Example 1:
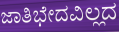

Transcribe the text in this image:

ಜಾತಿಭೇದವಿಲ್ಲದ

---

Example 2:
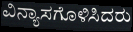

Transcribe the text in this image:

ವಿನ್ಯಾಸಗೊಳಿಸಿದರು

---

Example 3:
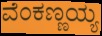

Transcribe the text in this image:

ವೆಂಕಣ್ಣಯ್ಯ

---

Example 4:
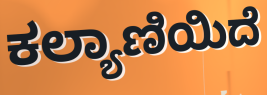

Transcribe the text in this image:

ಕಲ್ಯಾಣಿಯಿದೆ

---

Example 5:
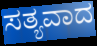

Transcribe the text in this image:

ಸತ್ಯವಾದ